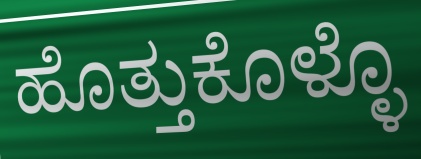
ಹೊತ್ತುಕೊಳ್ಳೊ